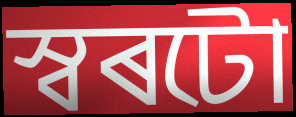
স্বৰটো